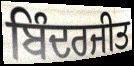
ਬਿੰਦਰਜੀਤ